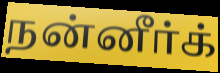
நன்னீர்க்